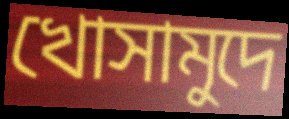
খোসামুদে